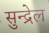
सुन्द्रेल